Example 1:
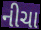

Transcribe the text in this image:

નીચા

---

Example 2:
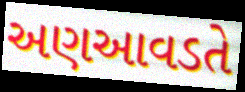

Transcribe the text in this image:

અણઆવડતે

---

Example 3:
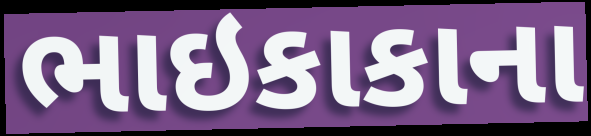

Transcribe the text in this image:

ભાઇકાકાના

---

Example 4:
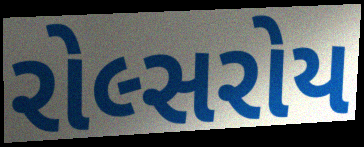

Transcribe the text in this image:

રોલ્સરોય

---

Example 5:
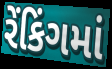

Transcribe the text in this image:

રેંકિંગમાં